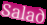
Salad